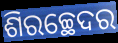
ଶିରଚ୍ଛେଦର